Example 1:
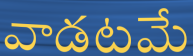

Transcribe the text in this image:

వాడటమే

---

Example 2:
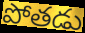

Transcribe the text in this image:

పోతడు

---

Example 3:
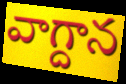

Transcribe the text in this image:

వాగ్దాన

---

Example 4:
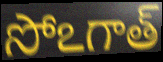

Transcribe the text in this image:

సోఽగాత్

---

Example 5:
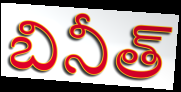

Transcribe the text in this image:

బినీత్